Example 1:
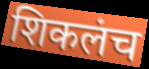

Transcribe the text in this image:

शिकलंच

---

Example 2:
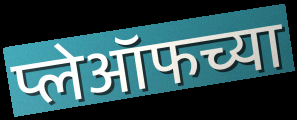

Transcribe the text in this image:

प्लेऑफच्या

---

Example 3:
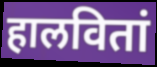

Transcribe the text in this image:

हालवितां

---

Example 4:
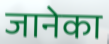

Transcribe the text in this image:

जानेका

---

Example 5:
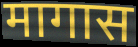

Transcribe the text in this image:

मागास